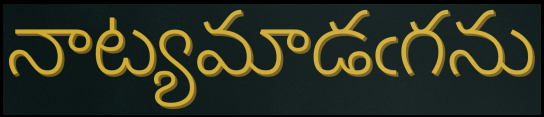
నాట్యమాడఁగను